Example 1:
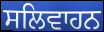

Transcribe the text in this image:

ਸਲਿਵਾਹਨ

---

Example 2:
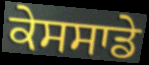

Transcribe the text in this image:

ਕੇਸਸਾਡੇ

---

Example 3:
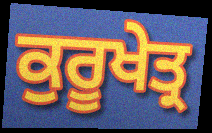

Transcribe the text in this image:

ਕੁਰੂਖੇਤ੍ਰ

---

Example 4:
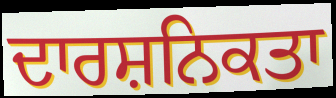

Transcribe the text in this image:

ਦਾਰਸ਼ਨਿਕਤਾ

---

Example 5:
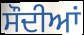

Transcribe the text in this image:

ਸੌਦੀਆਂ